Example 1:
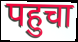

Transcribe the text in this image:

पहुचा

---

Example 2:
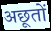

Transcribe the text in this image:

अछूतों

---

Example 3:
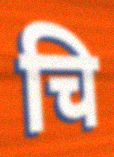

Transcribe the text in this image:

चि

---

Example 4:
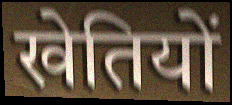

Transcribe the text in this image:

खेतियों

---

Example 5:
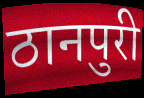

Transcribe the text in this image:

ठानपुरी